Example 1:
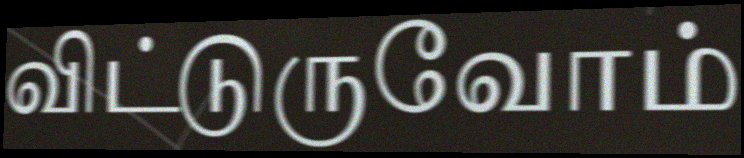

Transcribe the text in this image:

விட்டுருவோம்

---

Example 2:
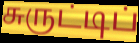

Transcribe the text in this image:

சுருட்டிப்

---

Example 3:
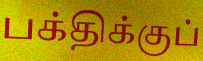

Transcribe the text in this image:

பக்திக்குப்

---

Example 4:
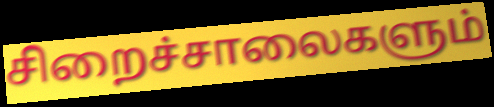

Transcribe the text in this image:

சிறைச்சாலைகளும்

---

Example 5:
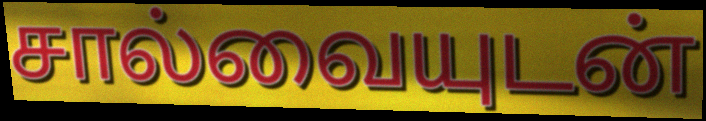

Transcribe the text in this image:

சால்வையுடன்